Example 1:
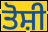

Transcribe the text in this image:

ਤੋਸ਼ੀ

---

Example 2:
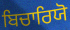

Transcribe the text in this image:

ਬਿਚਾਰਿਯੋ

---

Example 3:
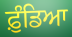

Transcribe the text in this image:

ਫ਼ੁੰਡਿਆ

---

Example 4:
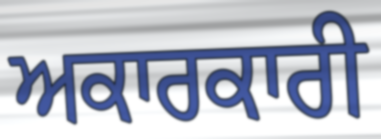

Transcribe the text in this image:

ਅਕਾਰਕਾਰੀ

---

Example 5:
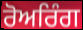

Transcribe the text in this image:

ਰੋਅਰਿੰਗ